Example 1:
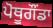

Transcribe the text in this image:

ਪੋਥੂਗੌਂਡਾ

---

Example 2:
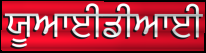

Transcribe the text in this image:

ਯੂਆਈਡੀਆਈ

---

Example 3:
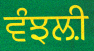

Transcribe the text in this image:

ਵੰਝਲ਼ੀ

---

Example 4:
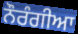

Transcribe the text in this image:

ਨੌਰੰਗੀਆ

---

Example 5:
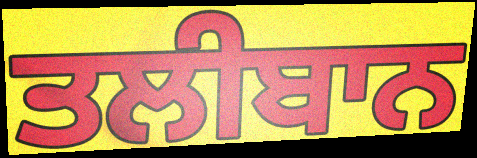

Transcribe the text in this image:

ਤਲੀਬਾਨ